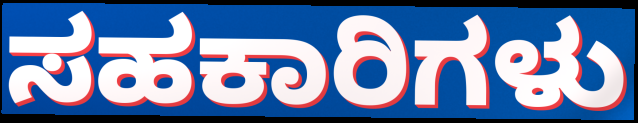
ಸಹಕಾರಿಗಳು